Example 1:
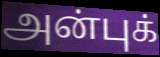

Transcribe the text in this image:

அன்புக்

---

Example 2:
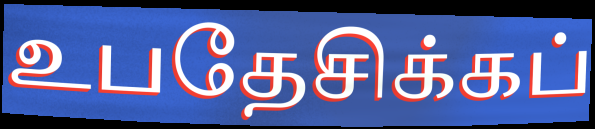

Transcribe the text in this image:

உபதேசிக்கப்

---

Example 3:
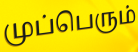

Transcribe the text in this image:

முப்பெரும்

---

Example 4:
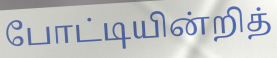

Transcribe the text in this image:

போட்டியின்றித்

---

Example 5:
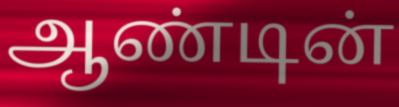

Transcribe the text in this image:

ஆண்டின்